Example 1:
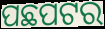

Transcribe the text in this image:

ପଛପଟର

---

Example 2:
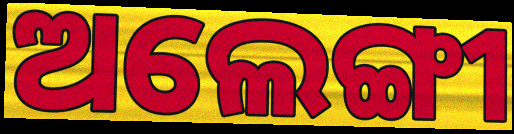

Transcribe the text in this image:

ଅଲେଙ୍ଗୀ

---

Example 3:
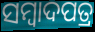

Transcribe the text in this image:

ସମ୍ବାଦପତ୍ର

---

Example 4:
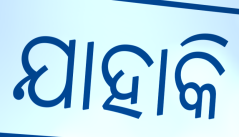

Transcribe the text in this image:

ଯାହାକି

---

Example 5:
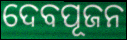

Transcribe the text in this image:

ଦେବପୂଜନ